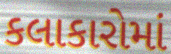
કલાકારોમાં